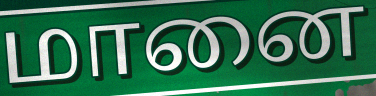
மானை